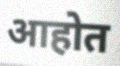
आहोत